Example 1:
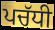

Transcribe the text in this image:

ਪਚੱਧੀ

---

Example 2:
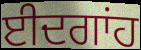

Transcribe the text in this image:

ਈਦਗਾਂਹ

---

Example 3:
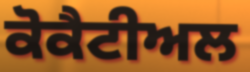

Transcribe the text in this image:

ਕੋਕੈਟੀਅਲ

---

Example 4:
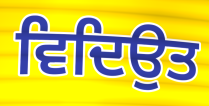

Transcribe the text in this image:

ਵਿਦਿਉਤ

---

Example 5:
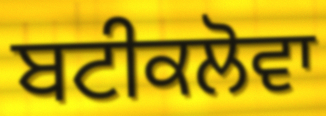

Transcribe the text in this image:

ਬਟੀਕਲੋਵਾ